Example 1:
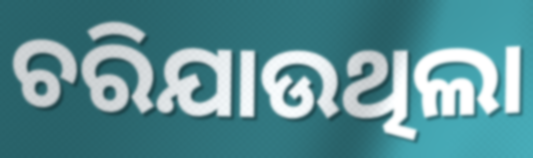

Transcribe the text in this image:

ଚରିଯାଉଥିଲା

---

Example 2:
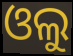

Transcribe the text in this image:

ଓଲୁ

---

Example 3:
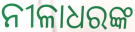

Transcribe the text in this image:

ନୀଳାଧରଙ୍କ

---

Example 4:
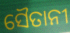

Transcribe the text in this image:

ସୈତାନୀ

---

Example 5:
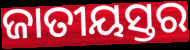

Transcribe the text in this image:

ଜାତୀୟସ୍ତର